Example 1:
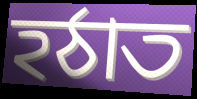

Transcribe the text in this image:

হঠাত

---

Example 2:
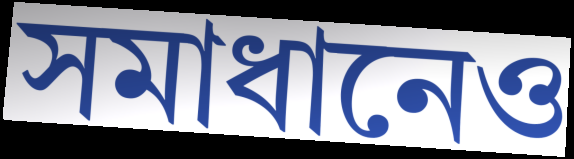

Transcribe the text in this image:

সমাধানেও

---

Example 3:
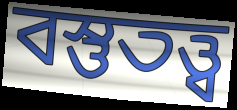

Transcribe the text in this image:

বস্তুতত্ত্ব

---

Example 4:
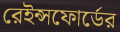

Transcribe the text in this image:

রেইন্সফোর্ডের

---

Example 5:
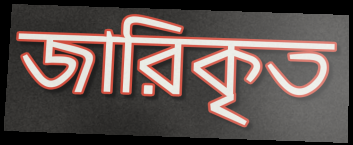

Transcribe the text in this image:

জারিকৃত